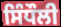
ਸਿੰਧੌਲੀ